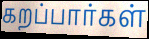
கறப்பார்கள்